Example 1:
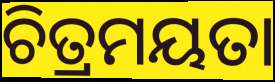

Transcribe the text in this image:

ଚିତ୍ରମୟତା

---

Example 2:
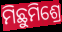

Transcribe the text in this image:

ମିଛୁମିଶ୍ରେ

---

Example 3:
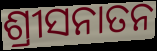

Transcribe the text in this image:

ଶ୍ରୀସନାତନ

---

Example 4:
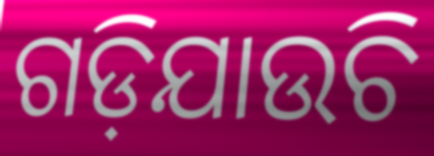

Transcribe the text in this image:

ଗଡ଼ିଯାଉଚି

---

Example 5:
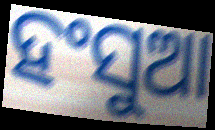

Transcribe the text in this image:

ହଂସୁଆ